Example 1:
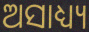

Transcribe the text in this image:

ଅସାଧ୍ୟ୍ୟ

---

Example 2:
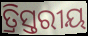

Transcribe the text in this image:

ତ୍ରିସ୍ତରୀୟ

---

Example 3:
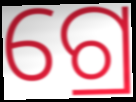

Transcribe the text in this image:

ଗ୍ରେ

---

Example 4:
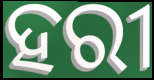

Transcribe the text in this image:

ହରୀ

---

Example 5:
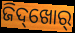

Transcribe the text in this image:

ଜିଦ୍‌ଖୋର୍